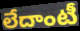
లేదాంటీ